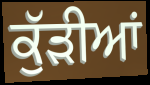
ਕੁੱੜੀਆਂ